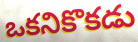
ఒకనికొకడు